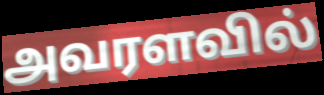
அவரளவில்